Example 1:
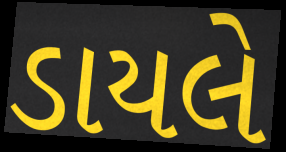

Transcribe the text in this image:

ડાયલે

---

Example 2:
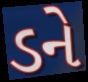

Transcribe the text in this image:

ડને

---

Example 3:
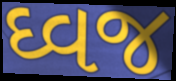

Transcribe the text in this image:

ઘ્વજ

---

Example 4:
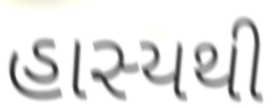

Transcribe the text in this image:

હાસ્યથી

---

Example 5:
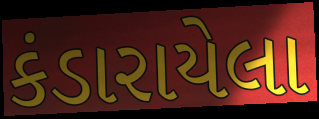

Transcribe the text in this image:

કંડારાયેલા